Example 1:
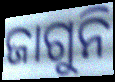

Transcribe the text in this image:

ଜାଗୁନି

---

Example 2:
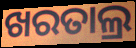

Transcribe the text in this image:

ଖରତାଲ୍ର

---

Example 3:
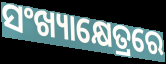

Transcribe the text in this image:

ସଂଖ୍ୟାକ୍ଷେତ୍ରରେ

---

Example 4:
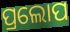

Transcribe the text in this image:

ପ୍ରଲୋପ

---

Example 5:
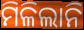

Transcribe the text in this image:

ମିଳିଲାନି